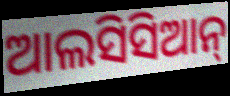
ଆଲସିସିଆନ୍